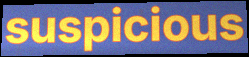
suspicious